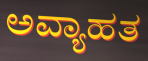
ಅವ್ಯಾಹತ